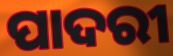
ପାଦରୀ